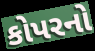
કોપરનો